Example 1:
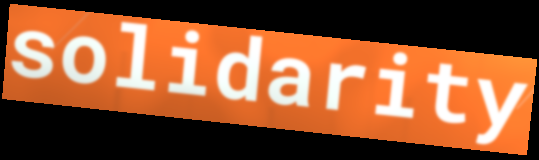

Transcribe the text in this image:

solidarity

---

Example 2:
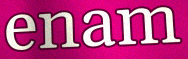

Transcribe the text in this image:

enam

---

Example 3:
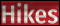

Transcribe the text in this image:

Hikes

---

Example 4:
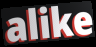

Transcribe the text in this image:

alike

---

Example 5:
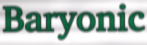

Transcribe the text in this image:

Baryonic